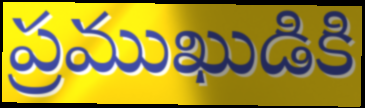
ప్రముఖుడికి